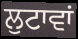
ਲੁਟਾਵਾਂ